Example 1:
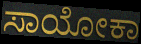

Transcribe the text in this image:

ಸಾಯೋಕಾ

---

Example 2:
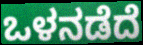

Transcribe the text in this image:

ಒಳನಡೆದೆ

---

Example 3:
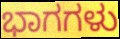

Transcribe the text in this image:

ಭಾಗಗಳು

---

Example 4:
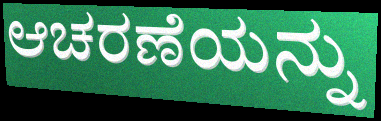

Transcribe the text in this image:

ಆಚರಣೆಯನ್ನು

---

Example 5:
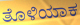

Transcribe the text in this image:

ತೊಳಿಯಾಕ